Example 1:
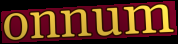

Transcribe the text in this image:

onnum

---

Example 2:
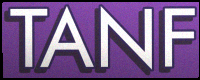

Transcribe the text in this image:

TANF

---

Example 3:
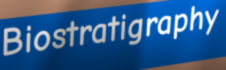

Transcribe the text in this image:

Biostratigraphy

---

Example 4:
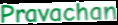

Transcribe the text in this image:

Pravachan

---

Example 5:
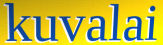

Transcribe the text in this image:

kuvalai